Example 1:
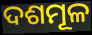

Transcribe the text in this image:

ଦଶମୂଳ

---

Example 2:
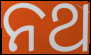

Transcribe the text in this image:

ନଥ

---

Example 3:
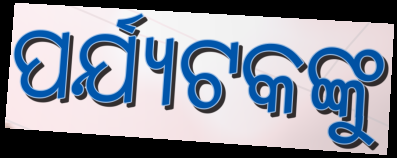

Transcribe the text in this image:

ପର୍ଯ୍ୟଟକଙ୍କୁ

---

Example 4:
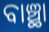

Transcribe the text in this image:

ବାଞ୍ଛା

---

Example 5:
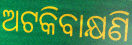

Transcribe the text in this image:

ଅଟକିବାକ୍ଷଣି